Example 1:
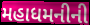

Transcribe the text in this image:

મહાધમનીની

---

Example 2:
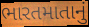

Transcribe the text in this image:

ભારતમાતાનું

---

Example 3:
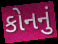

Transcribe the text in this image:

કોનનું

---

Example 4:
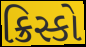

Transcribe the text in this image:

ક્રિસ્કો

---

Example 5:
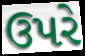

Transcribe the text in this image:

ઉપરે